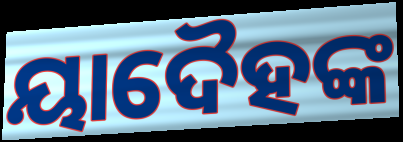
ୟାଦୈହଙ୍କ